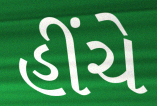
હીંચે